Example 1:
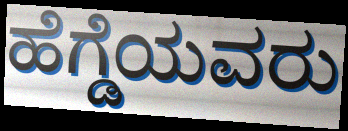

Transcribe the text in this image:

ಹೆಗ್ಡೆಯವರು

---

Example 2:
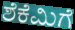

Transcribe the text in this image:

ಶೆಕೆಮಿಗೆ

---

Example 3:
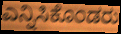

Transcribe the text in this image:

ಎನ್ನಿಸಿಕೊಂಡರು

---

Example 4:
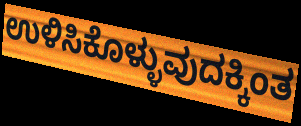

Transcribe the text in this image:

ಉಳಿಸಿಕೊಳ್ಳುವುದಕ್ಕಿಂತ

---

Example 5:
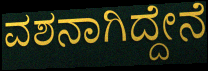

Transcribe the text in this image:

ವಶನಾಗಿದ್ದೇನೆ